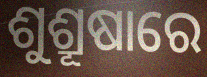
ଶୁଶ୍ରୂଷାରେ